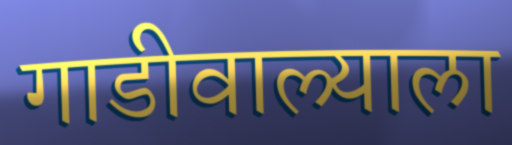
गाडीवाल्याला